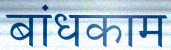
बांधकाम